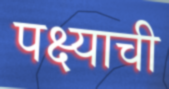
पक्ष्याची